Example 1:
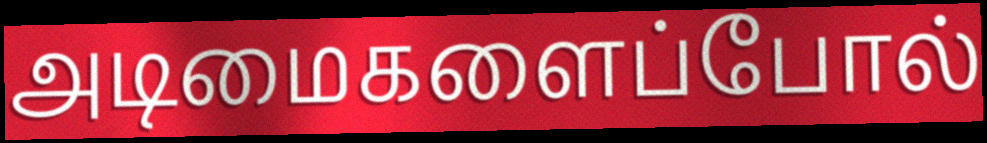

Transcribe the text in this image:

அடிமைகளைப்போல்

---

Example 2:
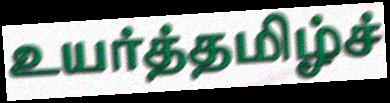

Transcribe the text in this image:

உயர்த்தமிழ்ச்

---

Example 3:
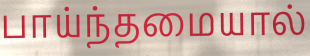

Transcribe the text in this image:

பாய்ந்தமையால்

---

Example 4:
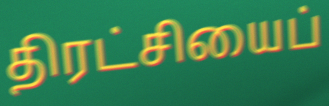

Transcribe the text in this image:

திரட்சியைப்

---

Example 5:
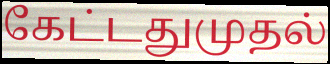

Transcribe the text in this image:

கேட்டதுமுதல்